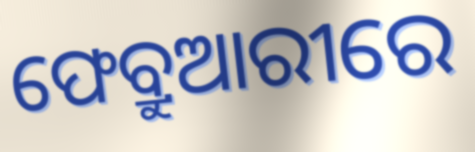
ଫେବ୍ରୁଆରୀରେ